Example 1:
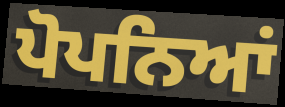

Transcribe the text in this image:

ਪੋਪਨਿਆਂ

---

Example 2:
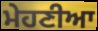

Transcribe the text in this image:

ਮੇਹਣੀਆ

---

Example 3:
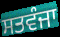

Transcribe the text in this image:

ਸਤਵੰਜਾ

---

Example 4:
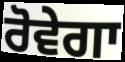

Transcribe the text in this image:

ਰੋਵੇਗਾ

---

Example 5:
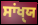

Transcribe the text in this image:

ਸਾਂਖੑਯ